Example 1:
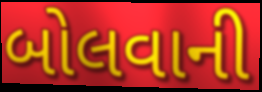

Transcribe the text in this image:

બોલવાની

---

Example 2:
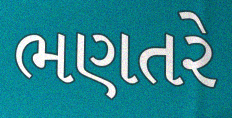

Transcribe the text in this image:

ભણતરે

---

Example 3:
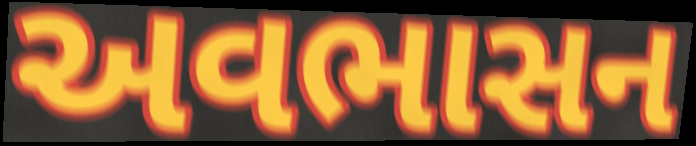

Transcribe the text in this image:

અવભાસન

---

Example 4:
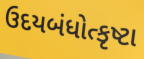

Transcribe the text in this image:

ઉદયબંધોત્કૃષ્ટા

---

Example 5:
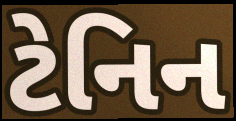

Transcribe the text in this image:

ટેનિન